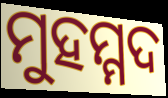
ମୁହମ୍ମଦ